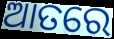
ଆତରେ